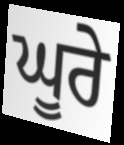
ਘੂਰੇ